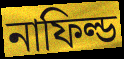
নাফিল্ড